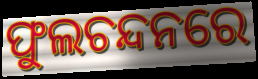
ଫୁଲଚନ୍ଦନରେ